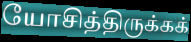
யோசித்திருக்கக்